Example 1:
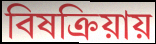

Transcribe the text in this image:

বিষক্রিয়ায়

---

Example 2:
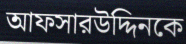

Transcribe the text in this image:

আফসারউদ্দিনকে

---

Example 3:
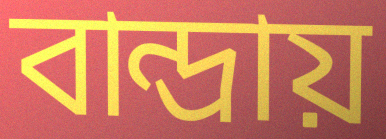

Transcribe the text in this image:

বান্দ্রায়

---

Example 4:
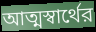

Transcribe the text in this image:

আত্মস্বার্থের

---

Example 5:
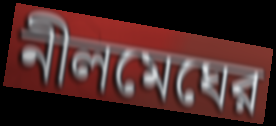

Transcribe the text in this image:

নীলমেঘের